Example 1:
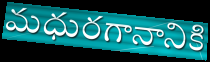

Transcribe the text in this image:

మధురగానానికి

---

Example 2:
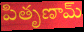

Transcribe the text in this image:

పితృణామ్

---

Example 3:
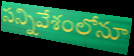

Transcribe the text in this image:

సన్నివేశంలోనూ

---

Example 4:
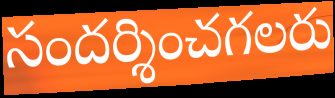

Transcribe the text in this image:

సందర్శించగలరు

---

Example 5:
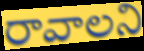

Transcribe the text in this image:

రావాలని